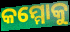
କମ୍ମୋକୁ